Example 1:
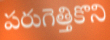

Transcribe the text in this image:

పరుగెత్తికొని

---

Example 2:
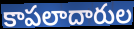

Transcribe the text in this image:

కాపలాదారుల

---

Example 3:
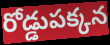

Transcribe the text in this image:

రోడ్డుపక్కన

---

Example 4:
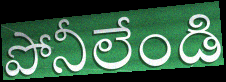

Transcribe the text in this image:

పోనీలేండి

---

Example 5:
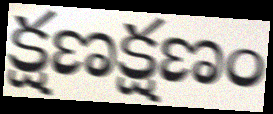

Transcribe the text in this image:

క్షణక్షణం